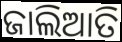
ଜାଲିଆତି